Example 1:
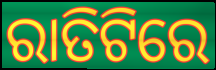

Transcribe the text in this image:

ରାତିଟିରେ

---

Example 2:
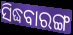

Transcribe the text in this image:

ସିଦ୍ଧବାରଙ୍ଗ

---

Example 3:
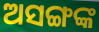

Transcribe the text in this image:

ଅସଙ୍ଗଙ୍କ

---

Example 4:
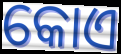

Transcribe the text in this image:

କୋଏ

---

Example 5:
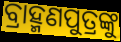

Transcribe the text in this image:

ବ୍ରାହ୍ମଣପୁତ୍ରଙ୍କୁ